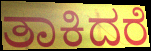
ತಾಕಿದರೆ